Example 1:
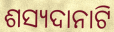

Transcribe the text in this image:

ଶସ୍ୟଦାନାଟି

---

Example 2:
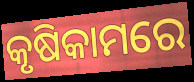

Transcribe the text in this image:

କୃଷିକାମରେ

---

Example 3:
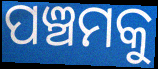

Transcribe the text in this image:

ପଞ୍ଚମକୁ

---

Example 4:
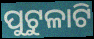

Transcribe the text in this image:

ପୁଟୁଳାଟି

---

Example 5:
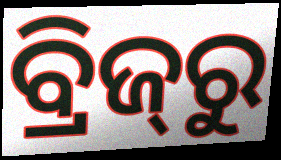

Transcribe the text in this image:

ବ୍ରିଜ୍‌ରୁ